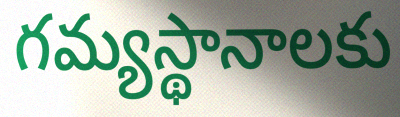
గమ్యస్థానాలకు